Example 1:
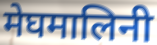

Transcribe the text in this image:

मेघमालिनी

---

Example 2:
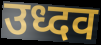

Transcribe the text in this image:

उध्दव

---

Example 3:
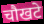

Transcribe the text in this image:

चौखटे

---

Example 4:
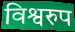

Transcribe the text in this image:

विश्वरुप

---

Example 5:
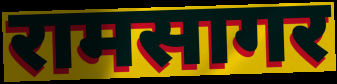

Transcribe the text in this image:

रामसागर